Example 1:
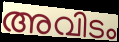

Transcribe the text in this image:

അവിടം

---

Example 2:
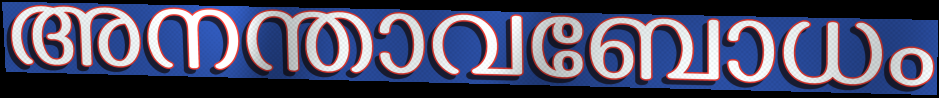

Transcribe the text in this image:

അനന്താവബോധം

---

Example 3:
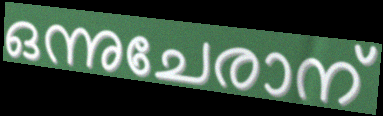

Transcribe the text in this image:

ഒന്നുചേരാന്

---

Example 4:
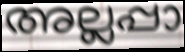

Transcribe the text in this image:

അല്ലപ്പാ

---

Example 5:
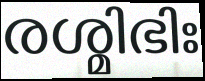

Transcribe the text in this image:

രശ്മിഭിഃ